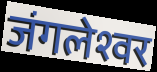
जंगलेश्वर